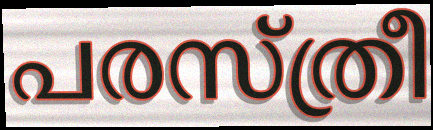
പരസ്ത്രീ